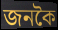
জনকৈ